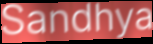
Sandhya